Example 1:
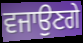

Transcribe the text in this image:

ਵਜਾਉਣਗੇ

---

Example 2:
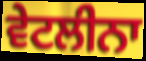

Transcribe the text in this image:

ਵੇਟਲੀਨਾ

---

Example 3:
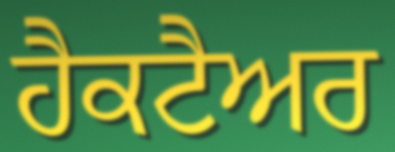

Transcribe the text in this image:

ਹੈਕਟੈਅਰ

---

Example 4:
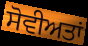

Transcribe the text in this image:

ਸੋਵੀਅਤਾਂ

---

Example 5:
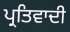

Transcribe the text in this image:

ਪ੍ਰਤਿਵਾਦੀ